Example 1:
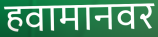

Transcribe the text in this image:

हवामानवर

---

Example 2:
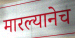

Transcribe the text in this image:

मारल्यानेच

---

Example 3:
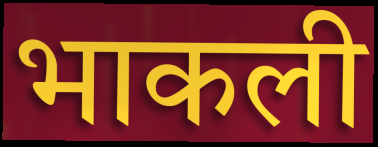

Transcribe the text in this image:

भाकली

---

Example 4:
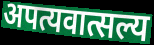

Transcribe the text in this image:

अपत्यवात्सल्य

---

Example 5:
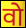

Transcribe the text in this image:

वो